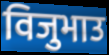
विजुभाउ